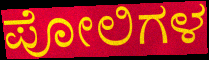
ಪೋಲಿಗಳ